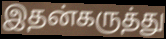
இதன்கருத்து